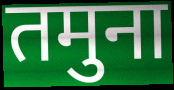
तमुना